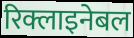
रिक्लाइनेबल